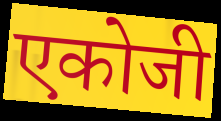
एकोजी